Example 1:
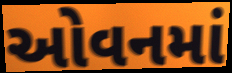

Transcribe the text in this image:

ઓવનમાં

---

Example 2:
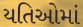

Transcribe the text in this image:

યતિઓમાં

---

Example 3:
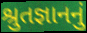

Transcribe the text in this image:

શ્રુતજ્ઞાનનું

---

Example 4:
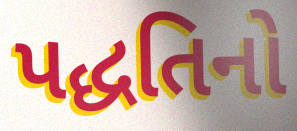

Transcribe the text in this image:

પદ્ધતિનો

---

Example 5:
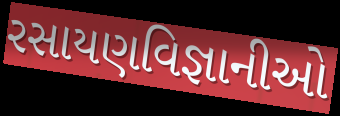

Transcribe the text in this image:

રસાયણવિજ્ઞાનીઓ